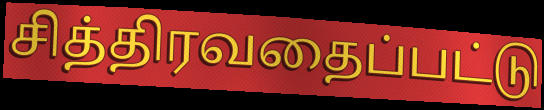
சித்திரவதைப்பட்டு